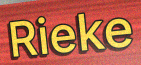
Rieke